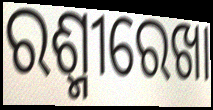
ରଶ୍ମୀରେଖା